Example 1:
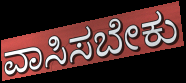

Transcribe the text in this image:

ವಾಸಿಸಬೇಕು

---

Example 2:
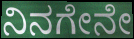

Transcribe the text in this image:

ನಿನಗೇನೇ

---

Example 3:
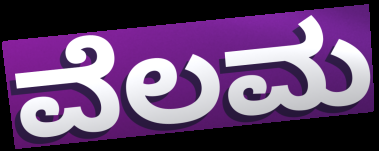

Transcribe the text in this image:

ವೆಲಮ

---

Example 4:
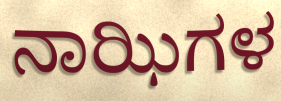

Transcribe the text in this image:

ನಾಝಿಗಳ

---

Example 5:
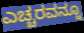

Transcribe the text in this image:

ಎಚ್ಚರವನ್ನೂ